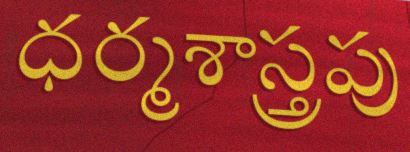
ధర్మశాస్త్రపు